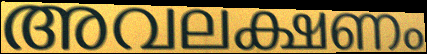
അവലക്ഷണം